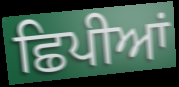
ਛਿਪੀਆਂ